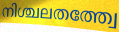
നിശ്ചലതത്ത്വേ